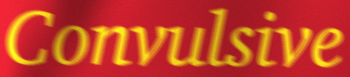
Convulsive